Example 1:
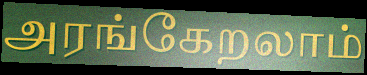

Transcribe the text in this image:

அரங்கேறலாம்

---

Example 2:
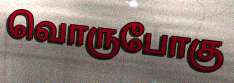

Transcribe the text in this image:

வொருபோகு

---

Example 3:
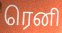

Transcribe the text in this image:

ரெனி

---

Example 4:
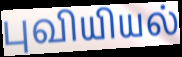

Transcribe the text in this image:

புவியியல்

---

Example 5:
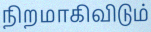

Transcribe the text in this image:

நிறமாகிவிடும்